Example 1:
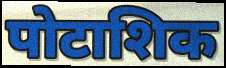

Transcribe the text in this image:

पोटाशिक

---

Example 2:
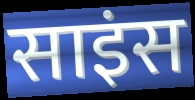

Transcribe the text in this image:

साइंस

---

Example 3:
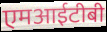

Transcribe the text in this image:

एमआईटीबी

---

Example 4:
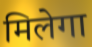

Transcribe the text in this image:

मिलेगा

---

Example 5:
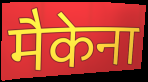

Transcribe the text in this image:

मैकेना